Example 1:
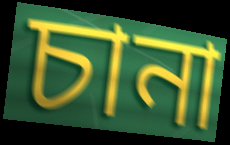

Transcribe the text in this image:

চানা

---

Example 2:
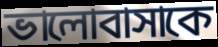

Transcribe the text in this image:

ভালোবাসাকে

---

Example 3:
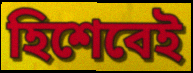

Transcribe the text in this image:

হিশেবেই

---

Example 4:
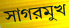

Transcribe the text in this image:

সাগরমুখ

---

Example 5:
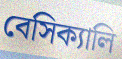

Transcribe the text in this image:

বেসিক্যালি